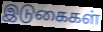
இடுகைகள்